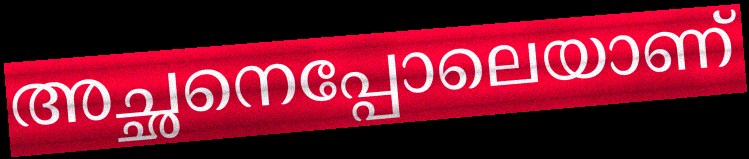
അച്ഛനെപ്പോലെയാണ്